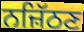
ਨਜ਼ਿੱਠਣ